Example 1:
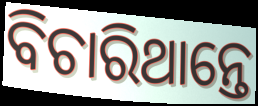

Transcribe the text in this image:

ବିଚାରିଥାନ୍ତେ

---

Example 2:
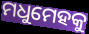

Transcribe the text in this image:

ମଧୁମେହକୁ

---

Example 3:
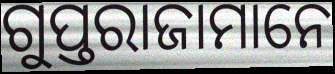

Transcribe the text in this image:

ଗୁପ୍ତରାଜାମାନେ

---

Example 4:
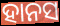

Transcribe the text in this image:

ହାନସ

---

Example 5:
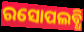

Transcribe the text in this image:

ରସୋପଲବ୍ଧି